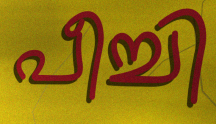
പീച്ചി